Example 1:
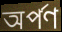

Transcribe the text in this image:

অৰ্পণ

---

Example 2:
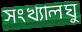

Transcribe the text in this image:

সংখ্যালঘু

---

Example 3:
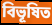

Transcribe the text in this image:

বিভূষিত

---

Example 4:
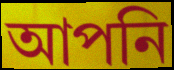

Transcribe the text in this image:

আপনি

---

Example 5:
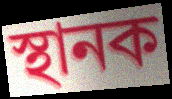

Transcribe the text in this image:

স্থানক